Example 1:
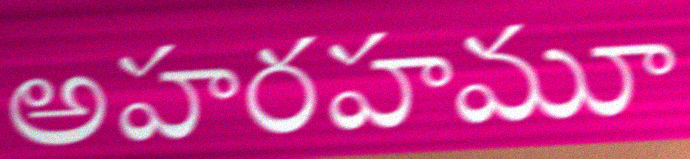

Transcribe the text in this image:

అహరహమూ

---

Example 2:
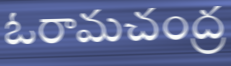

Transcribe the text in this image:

ఓరామచంద్ర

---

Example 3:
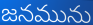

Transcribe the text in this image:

జనమును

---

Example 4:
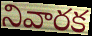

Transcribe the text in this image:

నివారక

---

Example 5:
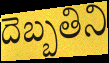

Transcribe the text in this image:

దెబ్బతిని